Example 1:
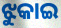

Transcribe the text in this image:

ଝୁକାଇ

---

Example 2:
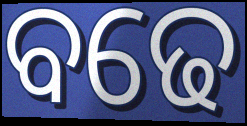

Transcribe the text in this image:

ବଢେ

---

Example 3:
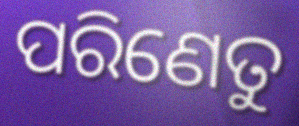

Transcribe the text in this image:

ପରିଣେତୁ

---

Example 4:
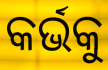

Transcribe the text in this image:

କର୍ଭକୁ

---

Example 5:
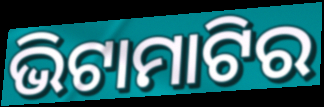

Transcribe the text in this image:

ଭିଟାମାଟିର